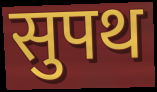
सुपथ